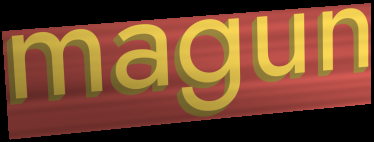
magun